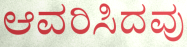
ಆವರಿಸಿದವು